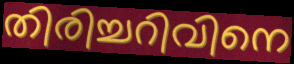
തിരിച്ചറിവിനെ